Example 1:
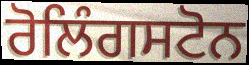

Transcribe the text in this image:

ਰੋਲਿੰਗਸਟੋਨ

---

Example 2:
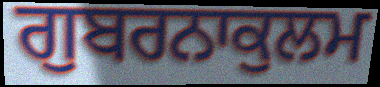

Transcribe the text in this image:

ਗੁਬਰਨਾਕੁਲਮ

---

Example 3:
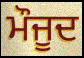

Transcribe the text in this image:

ਮੌਜੂਦ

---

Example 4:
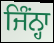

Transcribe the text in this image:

ਜਿੰਂਨ੍ਹਾ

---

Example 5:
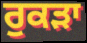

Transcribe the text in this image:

ਰੁਕੜਾ